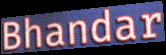
Bhandar